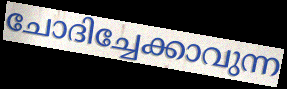
ചോദിച്ചേക്കാവുന്ന